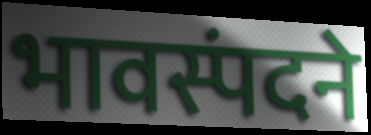
भावस्पंदने